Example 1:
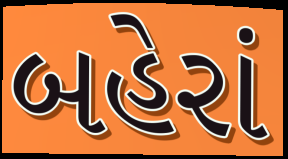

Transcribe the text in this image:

બહેરાં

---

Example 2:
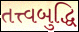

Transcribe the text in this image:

તત્ત્વબુદ્ધિ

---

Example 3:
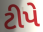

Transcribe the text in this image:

ટીપે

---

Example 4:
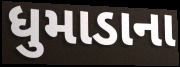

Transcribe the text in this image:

ધુમાડાના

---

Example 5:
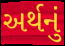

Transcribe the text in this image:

અર્થનું